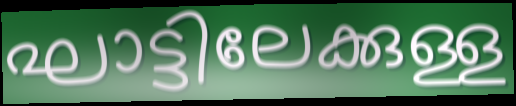
ഘാട്ടിലേക്കുള്ള